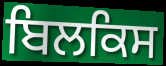
ਬਿਲਕਿਸ